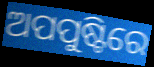
ଅପପୁଷ୍ଟିରେ